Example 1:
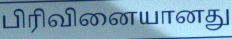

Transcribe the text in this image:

பிரிவினையானது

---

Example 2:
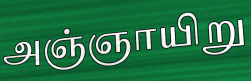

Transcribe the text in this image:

அஞ்ஞாயிறு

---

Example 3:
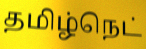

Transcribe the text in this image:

தமிழ்நெட்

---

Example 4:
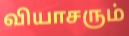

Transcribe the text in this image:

வியாசரும்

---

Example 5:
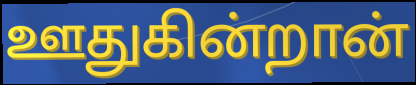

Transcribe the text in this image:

ஊதுகின்றான்